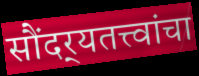
सौंदर्यतत्त्वांचा